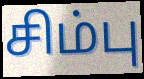
சிம்பு